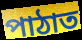
পাঠাত